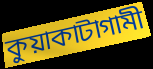
কুয়াকাটাগামী